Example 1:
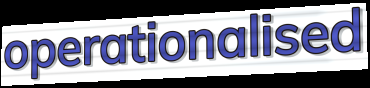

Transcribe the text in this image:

operationalised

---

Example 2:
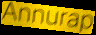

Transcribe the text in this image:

Annurap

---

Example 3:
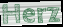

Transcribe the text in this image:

Herz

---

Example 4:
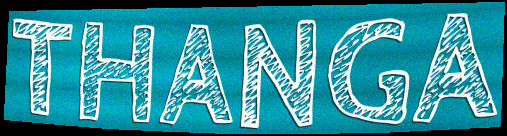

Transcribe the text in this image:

THANGA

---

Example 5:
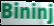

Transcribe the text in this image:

Bininj